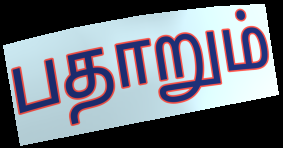
பதாறும்